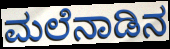
ಮಲೆನಾಡಿನ